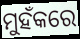
ମୁହଁକରେ